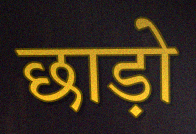
छाड़ो